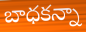
బాధకన్నా